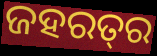
ଜହରତ୍‌ର